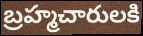
బ్రహ్మచారులకి